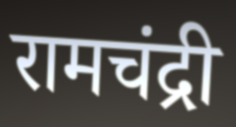
रामचंद्री